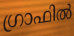
ഗ്രാഫിൽ